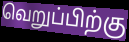
வெறுப்பிற்கு